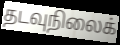
தடவுநிலைக்